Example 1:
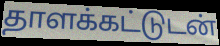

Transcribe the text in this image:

தாளக்கட்டுடன்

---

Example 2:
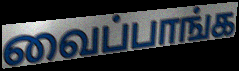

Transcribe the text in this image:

வைப்பாங்க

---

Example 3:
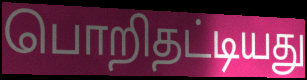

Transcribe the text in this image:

பொறிதட்டியது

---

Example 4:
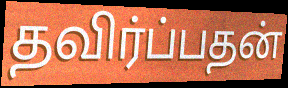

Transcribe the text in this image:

தவிர்ப்பதன்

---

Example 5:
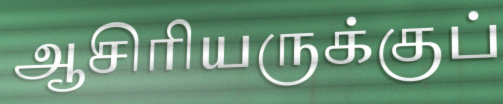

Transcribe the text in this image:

ஆசிரியருக்குப்